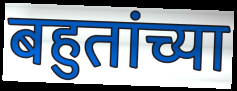
बहुतांच्या